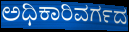
ಅಧಿಕಾರಿವರ್ಗದ